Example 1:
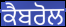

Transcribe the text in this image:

ਕੈਬਰੋਲ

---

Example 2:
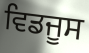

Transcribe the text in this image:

ਵਿਡਜੂਸ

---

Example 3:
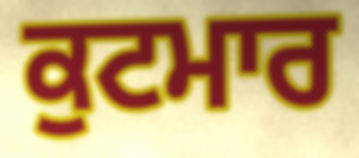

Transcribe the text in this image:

ਕੁਟਮਾਰ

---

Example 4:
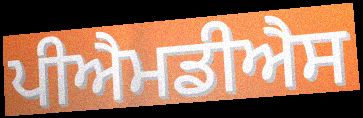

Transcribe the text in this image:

ਪੀਐਮਡੀਐਸ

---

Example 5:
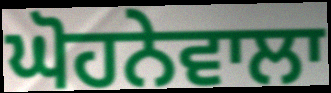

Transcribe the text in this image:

ਘੋਹਨੇਵਾਲਾ